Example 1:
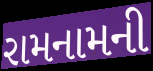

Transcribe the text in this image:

રામનામની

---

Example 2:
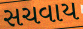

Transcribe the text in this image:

સચવાય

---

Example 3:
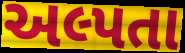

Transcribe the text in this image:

અલ્પતા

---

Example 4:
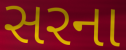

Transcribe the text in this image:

સરના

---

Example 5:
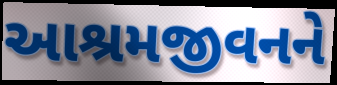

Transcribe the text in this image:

આશ્રમજીવનને